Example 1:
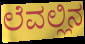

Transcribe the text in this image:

ಲೆವಲ್ಲಿನ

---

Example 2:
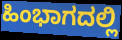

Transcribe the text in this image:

ಹಿಂಭಾಗದಲ್ಲಿ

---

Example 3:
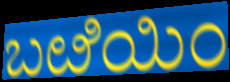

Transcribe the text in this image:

ಬೞಿಯಿಂ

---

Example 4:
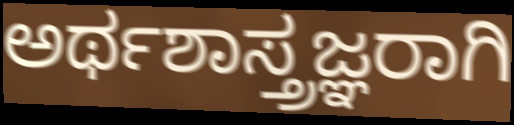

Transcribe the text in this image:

ಅರ್ಥಶಾಸ್ತ್ರಜ್ಞರಾಗಿ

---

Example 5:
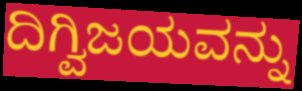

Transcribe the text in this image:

ದಿಗ್ವಿಜಯವನ್ನು